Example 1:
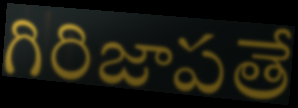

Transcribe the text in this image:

గిరిజాపతే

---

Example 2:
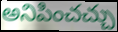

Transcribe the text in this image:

అనిపించచ్చు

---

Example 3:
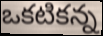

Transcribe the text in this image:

ఒకటికన్న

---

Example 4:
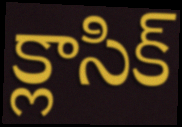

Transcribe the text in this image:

క్లాసిక్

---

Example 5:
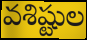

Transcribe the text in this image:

వశిష్టుల